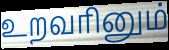
உறவரினும்